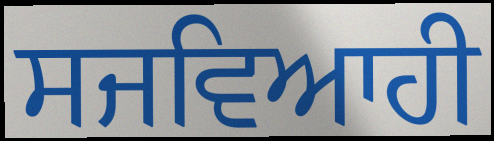
ਸਜਵਿਆਹੀ